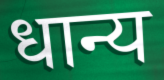
धान्य